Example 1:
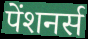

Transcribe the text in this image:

पेंशनर्स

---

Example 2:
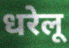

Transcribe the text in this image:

धरेलू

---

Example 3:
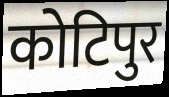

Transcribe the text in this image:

कोटिपुर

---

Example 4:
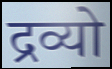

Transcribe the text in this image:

द्रव्यो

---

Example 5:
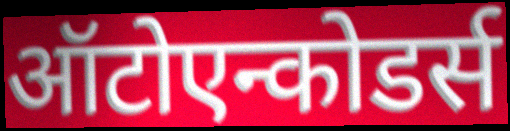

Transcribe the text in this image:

ऑटोएन्कोडर्स